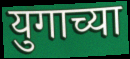
युगाच्या